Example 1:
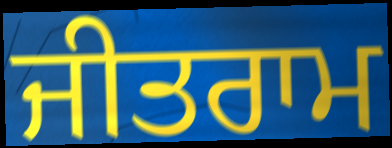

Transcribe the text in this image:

ਜੀਤਰਾਮ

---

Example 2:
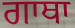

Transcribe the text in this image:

ਗਾਥਾ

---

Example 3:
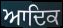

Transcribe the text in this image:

ਆਦਿਕ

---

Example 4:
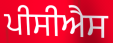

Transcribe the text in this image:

ਪੀਸੀਐਸ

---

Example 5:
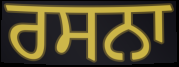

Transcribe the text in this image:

ਰਸਨਾ